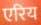
एरिय